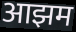
आझम